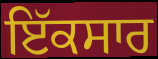
ਇੱਕਸਾਰ